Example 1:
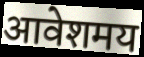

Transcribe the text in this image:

आवेशमय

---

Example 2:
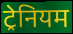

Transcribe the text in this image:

ट्रेनियम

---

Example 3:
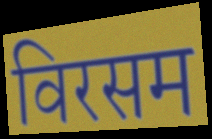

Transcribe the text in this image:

विरसम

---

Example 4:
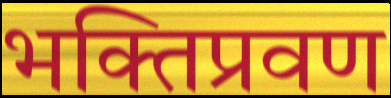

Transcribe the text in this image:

भक्तिप्रवण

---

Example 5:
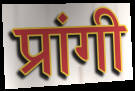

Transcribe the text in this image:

प्रांगी